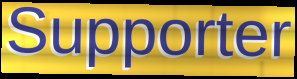
Supporter